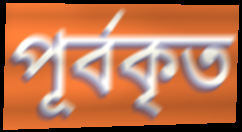
পূর্বকৃত